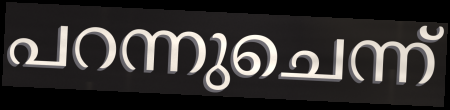
പറന്നുചെന്ന്